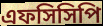
এফসিসিপি